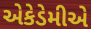
એકેડેમીએ